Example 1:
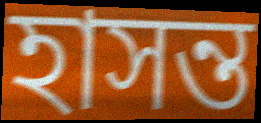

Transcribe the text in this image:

হাসন্ত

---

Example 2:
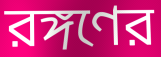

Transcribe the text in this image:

রঙ্গণের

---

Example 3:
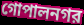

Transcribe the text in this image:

গোপালনগর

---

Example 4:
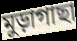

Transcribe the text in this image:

মুড়াগাছা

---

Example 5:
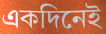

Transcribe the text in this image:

একদিনেই